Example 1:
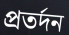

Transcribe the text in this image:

প্রতর্দন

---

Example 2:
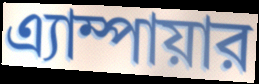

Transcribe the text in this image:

এ্যাম্পায়ার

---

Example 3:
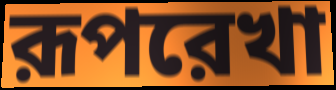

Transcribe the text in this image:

রূপরেখা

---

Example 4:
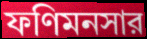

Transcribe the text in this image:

ফণিমনসার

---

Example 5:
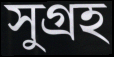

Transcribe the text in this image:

সুগ্রহ